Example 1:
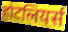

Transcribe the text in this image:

होटलियर्स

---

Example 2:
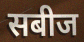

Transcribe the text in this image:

सबीज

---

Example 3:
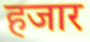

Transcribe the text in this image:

हजार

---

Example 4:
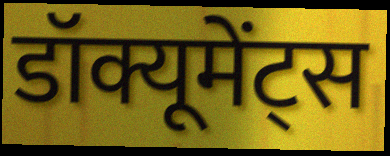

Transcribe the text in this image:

डॉक्यूमेंट्स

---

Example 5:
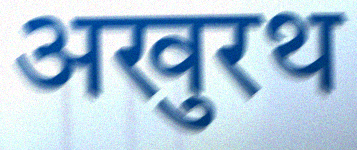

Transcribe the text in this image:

अखुरथ